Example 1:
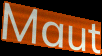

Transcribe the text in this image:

Maut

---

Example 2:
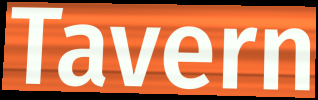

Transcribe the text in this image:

Tavern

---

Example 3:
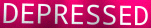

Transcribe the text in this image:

DEPRESSED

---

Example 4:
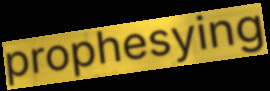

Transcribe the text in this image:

prophesying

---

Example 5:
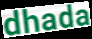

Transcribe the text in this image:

dhada